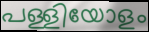
പള്ളിയോളം